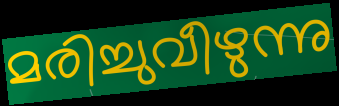
മരിച്ചുവീഴുന്നു